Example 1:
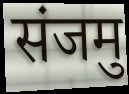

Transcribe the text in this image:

संजमु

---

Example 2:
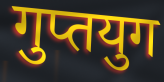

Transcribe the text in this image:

गुप्तयुग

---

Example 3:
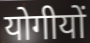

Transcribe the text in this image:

योगीयों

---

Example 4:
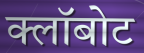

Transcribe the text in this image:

क्लॉबोट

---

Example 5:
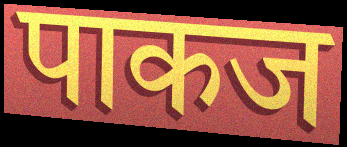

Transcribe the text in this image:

पाकज